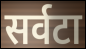
सर्वटा